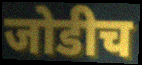
जोडीच